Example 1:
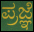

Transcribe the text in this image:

ಪ್ರಜ್ಞೆ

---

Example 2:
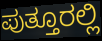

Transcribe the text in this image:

ಪುತ್ತೂರಲ್ಲಿ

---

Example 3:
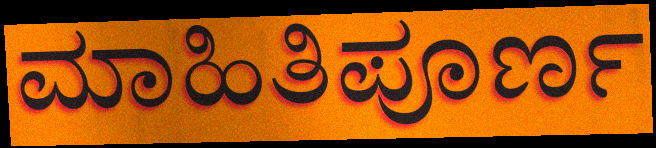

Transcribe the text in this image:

ಮಾಹಿತಿಪೂರ್ಣ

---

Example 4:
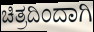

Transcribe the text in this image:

ಚಿತ್ರದಿಂದಾಗಿ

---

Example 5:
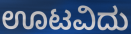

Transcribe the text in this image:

ಊಟವಿದು